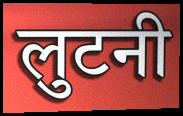
लुटनी